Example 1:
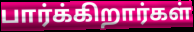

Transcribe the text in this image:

பார்க்கிறார்கள்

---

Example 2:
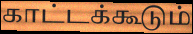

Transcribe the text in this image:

காட்டக்கூடும்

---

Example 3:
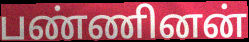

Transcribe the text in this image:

பண்ணினன்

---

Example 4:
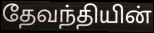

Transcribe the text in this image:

தேவந்தியின்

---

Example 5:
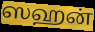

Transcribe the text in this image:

ஸஹன்